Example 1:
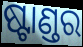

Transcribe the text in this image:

ଷ୍ଟାଣ୍ଡର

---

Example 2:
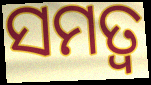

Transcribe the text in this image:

ସମତ୍ଵ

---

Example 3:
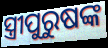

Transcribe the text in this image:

ସ୍ତ୍ରୀପୁରୁଷଙ୍କ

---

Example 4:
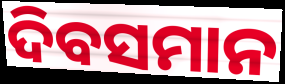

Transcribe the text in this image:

ଦିବସମାନ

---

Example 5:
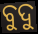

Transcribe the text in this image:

ବୁଦୁ